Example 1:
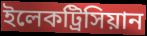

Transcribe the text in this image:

ইলেকট্রিসিয়ান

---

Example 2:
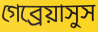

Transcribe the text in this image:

গেব্রেয়াসুস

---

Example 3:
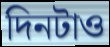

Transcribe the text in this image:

দিনটাও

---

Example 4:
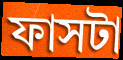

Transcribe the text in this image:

ফাসটা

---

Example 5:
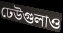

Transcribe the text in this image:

ঢেউগুলাও